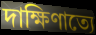
দাক্ষিণাত্যে